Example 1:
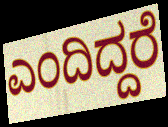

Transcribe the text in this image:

ಎಂದಿದ್ದರೆ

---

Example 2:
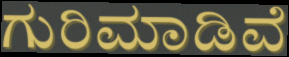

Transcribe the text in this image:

ಗುರಿಮಾಡಿವೆ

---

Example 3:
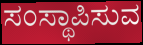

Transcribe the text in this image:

ಸಂಸ್ಥಾಪಿಸುವ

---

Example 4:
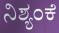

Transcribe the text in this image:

ನಿಶ್ಯಂಕೆ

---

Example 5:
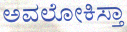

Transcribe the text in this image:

ಅವಲೋಕಿಸ್ತಾ